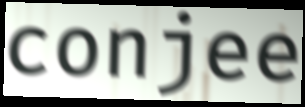
conjee